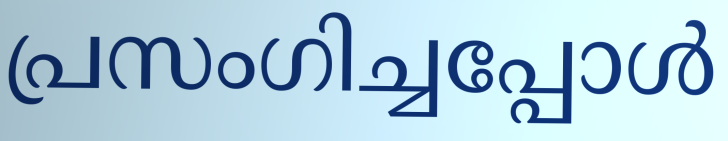
പ്രസംഗിച്ചപ്പോൾ